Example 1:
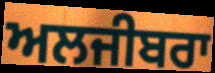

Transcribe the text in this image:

ਅਲਜੀਬਰਾ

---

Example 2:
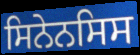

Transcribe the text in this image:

ਸਿਨੇਨਸਿਸ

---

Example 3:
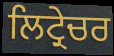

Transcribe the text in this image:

ਲਿਟ੍ਰੇਚਰ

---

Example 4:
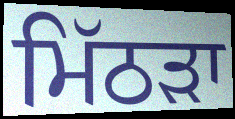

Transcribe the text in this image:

ਮਿੱਠੜਾ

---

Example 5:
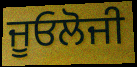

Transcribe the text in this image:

ਜੂਓਲੋਜੀ